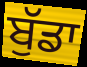
ਬੁੱਡਾ